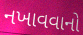
નખાવવાનો